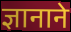
ज्ञानाने